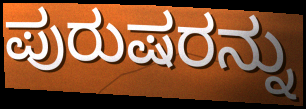
ಪುರುಷರನ್ನು